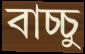
বাচ্চু